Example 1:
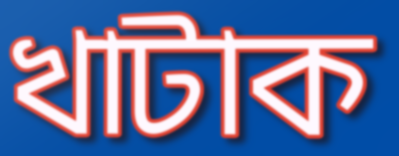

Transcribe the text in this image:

খাটাক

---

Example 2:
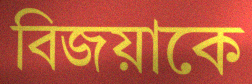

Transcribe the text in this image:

বিজয়াকে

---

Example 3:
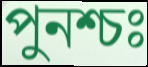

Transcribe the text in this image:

পুনশ্চঃ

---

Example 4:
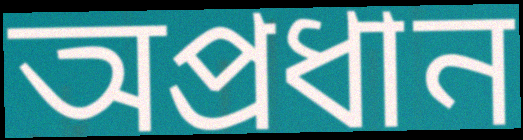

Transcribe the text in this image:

অপ্রধান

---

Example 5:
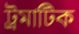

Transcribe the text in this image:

ট্রমাটিক